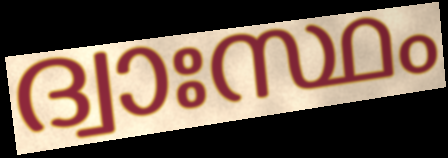
ദ്വാഃസ്ഥം